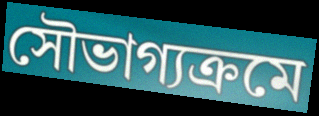
সৌভাগ্যক্রমে